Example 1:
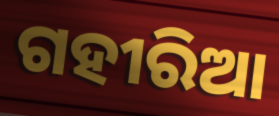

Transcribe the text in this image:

ଗହୀରିଆ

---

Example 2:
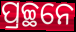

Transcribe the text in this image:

ପ୍ରଚ୍ଛନେ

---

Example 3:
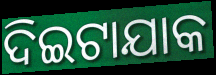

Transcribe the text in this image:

ଦିଇଟାଯାକ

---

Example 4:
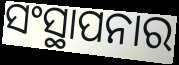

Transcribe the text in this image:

ସଂସ୍ଥାପନାର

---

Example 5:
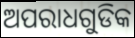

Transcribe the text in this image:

ଅପରାଧଗୁଡିକ